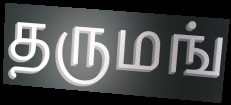
தருமங்